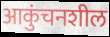
आकुंचनशील